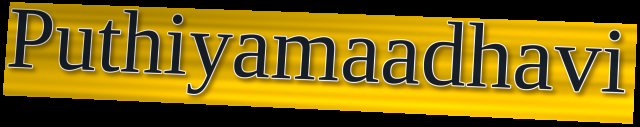
Puthiyamaadhavi